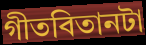
গীতবিতানটা